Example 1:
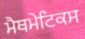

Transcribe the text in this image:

ਮੈਥਮੇਟਿਕਸ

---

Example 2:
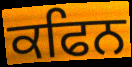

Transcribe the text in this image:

ਕਫਿਨ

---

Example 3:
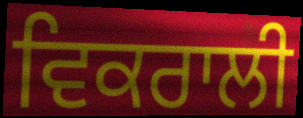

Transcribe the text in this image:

ਵਿਕਰਾਲੀ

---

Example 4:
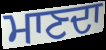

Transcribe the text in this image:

ਮਾਣਦਾ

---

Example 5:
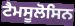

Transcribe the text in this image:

ਟੈਮਸੂਲੋਸਿਨ